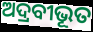
ଅଦ୍ରବୀଭୂତ